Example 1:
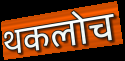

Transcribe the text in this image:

थकलोच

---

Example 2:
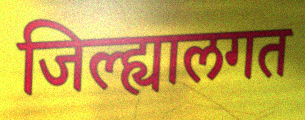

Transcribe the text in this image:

जिल्ह्यालगत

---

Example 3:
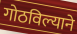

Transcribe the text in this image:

गोठविल्याने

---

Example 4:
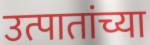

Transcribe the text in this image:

उत्पातांच्या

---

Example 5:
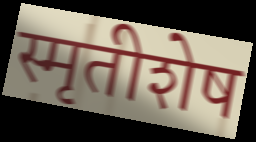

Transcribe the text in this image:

स्मृतीशेष